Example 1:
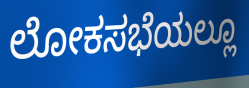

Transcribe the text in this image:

ಲೋಕಸಭೆಯಲ್ಲೂ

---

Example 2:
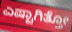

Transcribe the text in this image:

ಎಷ್ಟಾಗಿತ್ತೋ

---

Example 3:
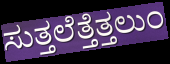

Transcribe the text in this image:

ಸುತ್ತಲೆತ್ತೆತ್ತಲುಂ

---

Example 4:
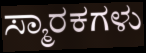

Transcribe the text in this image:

ಸ್ಮಾರಕಗಳು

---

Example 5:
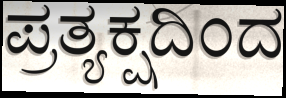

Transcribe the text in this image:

ಪ್ರತ್ಯಕ್ಷದಿಂದ